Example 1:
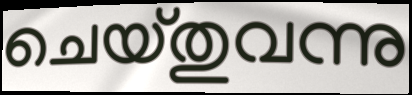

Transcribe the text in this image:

ചെയ്തുവന്നു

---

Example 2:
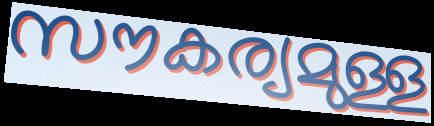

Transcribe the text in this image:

സൗകര്യമുള്ള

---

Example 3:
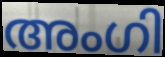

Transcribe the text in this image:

അംഗി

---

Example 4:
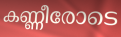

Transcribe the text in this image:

കണ്ണീരോടെ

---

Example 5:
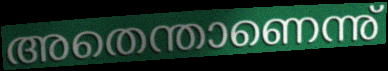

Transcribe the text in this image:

അതെന്താണെന്നു്